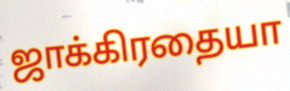
ஜாக்கிரதையா